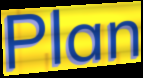
Plan